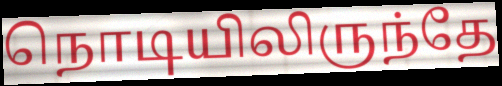
நொடியிலிருந்தே